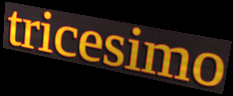
tricesimo